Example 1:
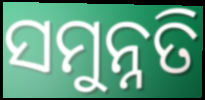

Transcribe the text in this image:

ସମୁନ୍ନତି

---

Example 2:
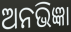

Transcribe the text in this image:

ଅନଭିଜ୍ଞା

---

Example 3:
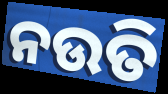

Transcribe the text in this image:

ନଉତି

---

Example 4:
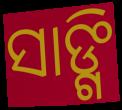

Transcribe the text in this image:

ସାଙ୍ଗି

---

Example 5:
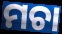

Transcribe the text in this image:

ମଚା